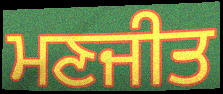
ਮਣਜੀਤ